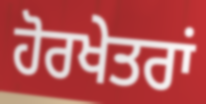
ਹੋਰਖੇਤਰਾਂ